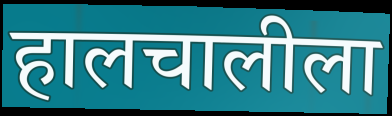
हालचालीला